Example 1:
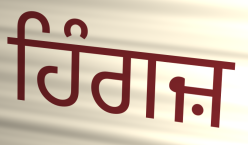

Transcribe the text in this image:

ਹਿੰਗਜ਼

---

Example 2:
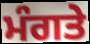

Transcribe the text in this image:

ਮੰਗਤੇ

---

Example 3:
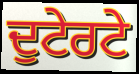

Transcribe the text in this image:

ਦੁਟੇਰਟੇ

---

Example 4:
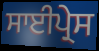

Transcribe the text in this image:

ਸਾਈਪ੍ਰੇਸ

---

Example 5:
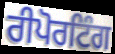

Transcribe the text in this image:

ਰੀਪੋਰਟਿੰਗ